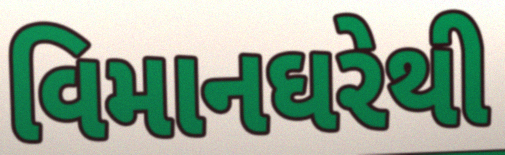
વિમાનઘરેથી